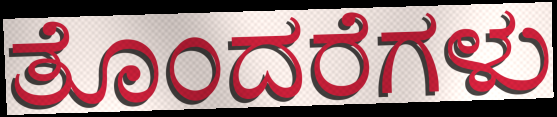
ತೊಂದರೆಗಳು